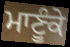
ਮਾਣੂੰਕੇ